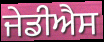
ਜੇਡੀਐਸ